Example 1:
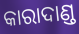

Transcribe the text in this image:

କାରାଦାଣ୍ଡ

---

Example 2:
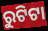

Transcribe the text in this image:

ରୁଟିଟା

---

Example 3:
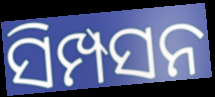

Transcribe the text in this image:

ସିମ୍ପସନ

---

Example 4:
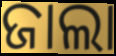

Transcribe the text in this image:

ଜାଲା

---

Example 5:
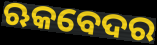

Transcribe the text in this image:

ଋକବେଦର